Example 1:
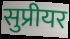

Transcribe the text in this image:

सुप्रीयर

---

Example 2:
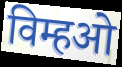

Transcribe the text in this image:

विम्हओ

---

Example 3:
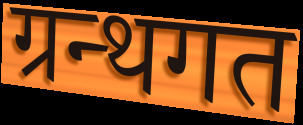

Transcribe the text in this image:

ग्रन्थगत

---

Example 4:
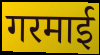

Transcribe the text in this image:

गरमाई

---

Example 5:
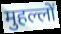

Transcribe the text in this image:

मुहल्लों